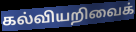
கல்வியறிவைக்